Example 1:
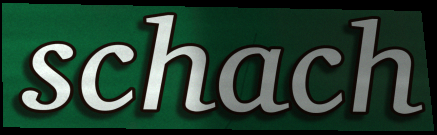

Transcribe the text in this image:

schach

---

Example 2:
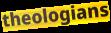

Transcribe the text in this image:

theologians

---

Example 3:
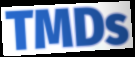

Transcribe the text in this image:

TMDs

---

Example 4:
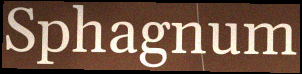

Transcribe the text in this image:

Sphagnum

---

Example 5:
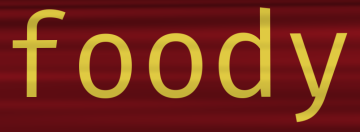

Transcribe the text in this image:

foody